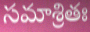
సమాశ్రితః